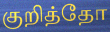
குறித்தோ